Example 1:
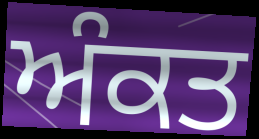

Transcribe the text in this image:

ਅੰਕਤ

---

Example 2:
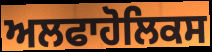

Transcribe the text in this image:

ਅਲਫਾਹੋਲਿਕਸ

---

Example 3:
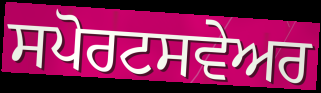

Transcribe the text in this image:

ਸਪੋਰਟਸਵੇਅਰ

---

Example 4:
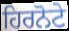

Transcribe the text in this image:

ਹਿਰਨੋਟੇ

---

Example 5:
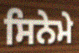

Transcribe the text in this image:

ਸਿਨੇਮੇ